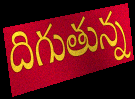
దిగుతున్న